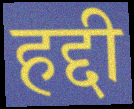
हद्दी